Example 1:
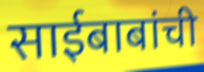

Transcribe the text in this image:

साईबाबांची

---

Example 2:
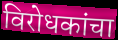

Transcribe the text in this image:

विरोधकांचा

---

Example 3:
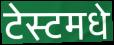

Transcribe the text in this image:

टेस्टमधे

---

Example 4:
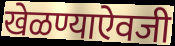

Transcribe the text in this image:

खेळण्याऐवजी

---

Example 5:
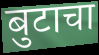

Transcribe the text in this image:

बुटाचा